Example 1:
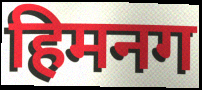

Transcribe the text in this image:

हिमनग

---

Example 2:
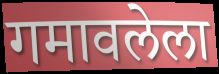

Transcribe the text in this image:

गमावलेला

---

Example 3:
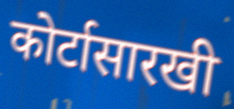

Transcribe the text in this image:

कोर्टासारखी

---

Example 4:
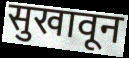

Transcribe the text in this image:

सुखावून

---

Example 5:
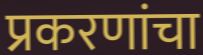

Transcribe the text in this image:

प्रकरणांचा